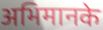
अभिमानके